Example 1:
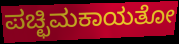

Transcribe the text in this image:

ಪಚ್ಛಿಮಕಾಯತೋ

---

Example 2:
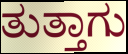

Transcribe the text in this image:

ತುತ್ತಾಗು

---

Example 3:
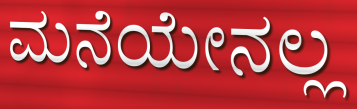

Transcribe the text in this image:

ಮನೆಯೇನಲ್ಲ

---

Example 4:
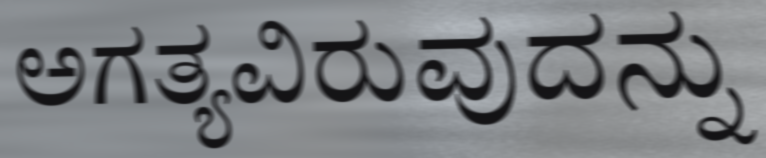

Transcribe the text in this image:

ಅಗತ್ಯವಿರುವುದನ್ನು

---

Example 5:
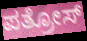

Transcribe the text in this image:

ಪತ್ರೋಸ್